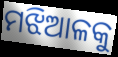
ମଝିଆଳକୁ